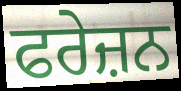
ਫਰੇਜ਼ਨ